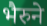
भैरुने